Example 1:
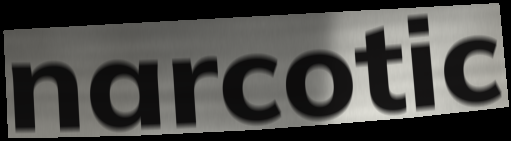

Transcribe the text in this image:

narcotic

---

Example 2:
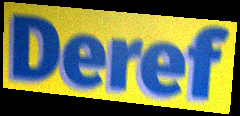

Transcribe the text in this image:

Deref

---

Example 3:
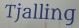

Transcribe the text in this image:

Tjalling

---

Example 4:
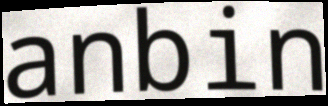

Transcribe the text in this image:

anbin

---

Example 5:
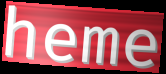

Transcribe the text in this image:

heme